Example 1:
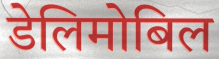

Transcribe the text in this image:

डेलिमोबिल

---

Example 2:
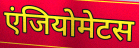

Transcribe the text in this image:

एंजियोमेटस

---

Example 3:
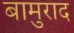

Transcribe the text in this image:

बामुराद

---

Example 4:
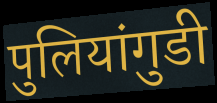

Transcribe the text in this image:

पुलियांगुडी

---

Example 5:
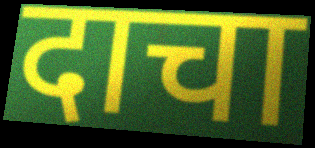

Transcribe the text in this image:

दाचा